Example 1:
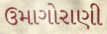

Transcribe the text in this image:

ઉમાગોરાણી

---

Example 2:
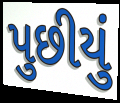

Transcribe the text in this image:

પુછીયું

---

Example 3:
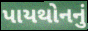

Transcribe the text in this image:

પાયથોનનું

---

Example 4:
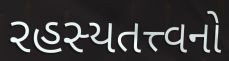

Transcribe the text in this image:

રહસ્યતત્ત્વનો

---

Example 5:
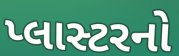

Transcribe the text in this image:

પ્લાસ્ટરનો